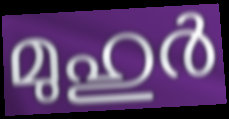
മുഹുർ